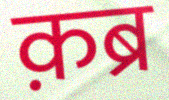
क़ब्र